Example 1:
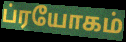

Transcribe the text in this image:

ப்ரயோகம்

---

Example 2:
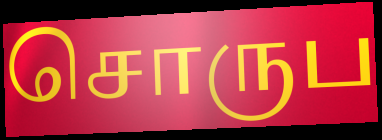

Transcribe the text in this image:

சொருப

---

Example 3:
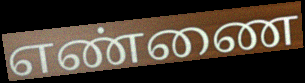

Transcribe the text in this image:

எண்ணை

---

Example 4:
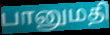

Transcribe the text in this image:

பானுமதி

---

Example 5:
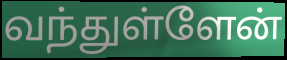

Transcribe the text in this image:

வந்துள்ளேன்